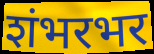
शंभरभर